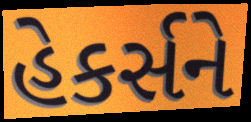
હેકર્સને